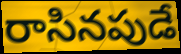
రాసినపుడే